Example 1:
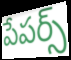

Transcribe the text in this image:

పేపర్స్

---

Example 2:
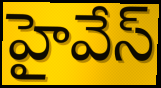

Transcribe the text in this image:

హైవేస్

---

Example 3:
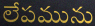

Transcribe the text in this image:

లేపమును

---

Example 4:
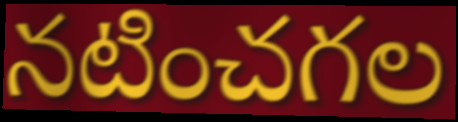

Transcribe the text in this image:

నటించగల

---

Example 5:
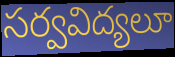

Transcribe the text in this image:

సర్వవిద్యలూ